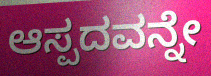
ಆಸ್ಪದವನ್ನೇ